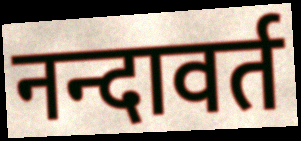
नन्दावर्त